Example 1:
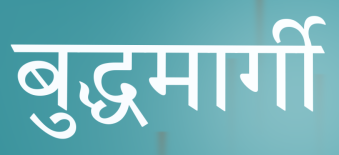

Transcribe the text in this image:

बुद्धमार्गी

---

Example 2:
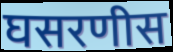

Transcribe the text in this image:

घसरणीस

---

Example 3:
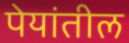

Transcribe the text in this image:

पेयांतील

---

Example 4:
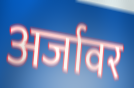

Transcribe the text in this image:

अर्जावर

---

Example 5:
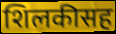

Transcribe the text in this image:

शिलकीसह